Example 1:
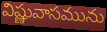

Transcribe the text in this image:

విష్ణువాసమును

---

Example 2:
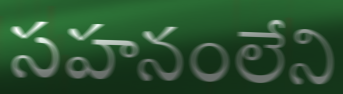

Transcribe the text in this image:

సహనంలేని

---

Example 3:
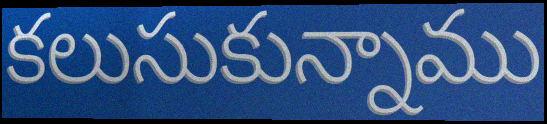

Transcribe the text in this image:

కలుసుకున్నాము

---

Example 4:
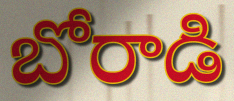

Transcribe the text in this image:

బోరాడి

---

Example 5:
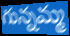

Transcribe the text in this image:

గున్నమ్మ